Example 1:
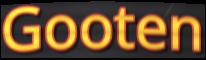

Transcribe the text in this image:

Gooten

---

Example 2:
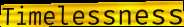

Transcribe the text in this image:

Timelessness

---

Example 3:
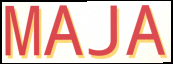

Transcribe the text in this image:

MAJA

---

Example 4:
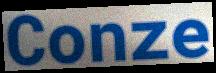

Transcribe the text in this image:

Conze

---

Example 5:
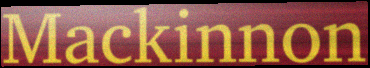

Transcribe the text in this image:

Mackinnon